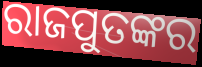
ରାଜପୁତଙ୍କର